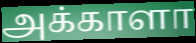
அக்காளா